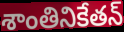
శాంతినికేతన్